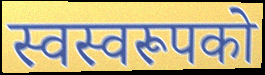
स्वस्वरूपको